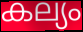
കല്യം